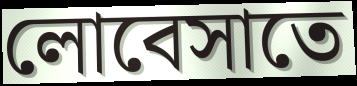
লোবেসাতে